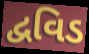
દ્વવિડ